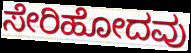
ಸೇರಿಹೋದವು